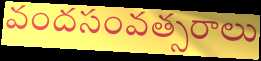
వందసంవత్సరాలు